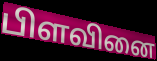
பிளவினை